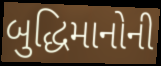
બુદ્ધિમાનોની